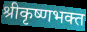
श्रीकृष्णभक्त